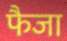
फैजा